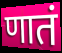
णातं